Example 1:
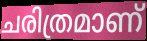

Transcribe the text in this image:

ചരിത്രമാണ്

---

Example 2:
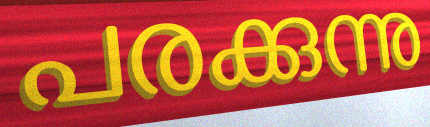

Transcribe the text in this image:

പരക്കുന്നു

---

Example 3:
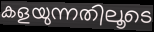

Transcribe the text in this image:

കളയുന്നതിലൂടെ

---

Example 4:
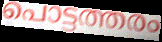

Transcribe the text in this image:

പൊട്ടത്തരം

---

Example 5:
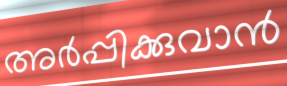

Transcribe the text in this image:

അർപ്പിക്കുവാൻ